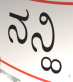
ನನ್ಹಿ